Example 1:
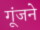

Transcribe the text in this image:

गूंजने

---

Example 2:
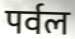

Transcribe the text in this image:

पर्वल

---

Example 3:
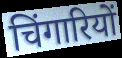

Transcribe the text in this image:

चिंगारियों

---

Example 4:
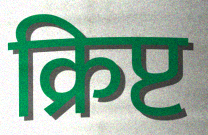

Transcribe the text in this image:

क्रिप्ट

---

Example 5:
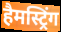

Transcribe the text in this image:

हैमस्ट्रिंग